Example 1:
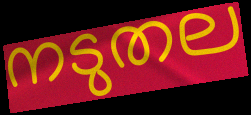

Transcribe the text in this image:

നടുതല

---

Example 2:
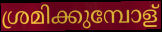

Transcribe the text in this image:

ശ്രമിക്കുമ്പോള്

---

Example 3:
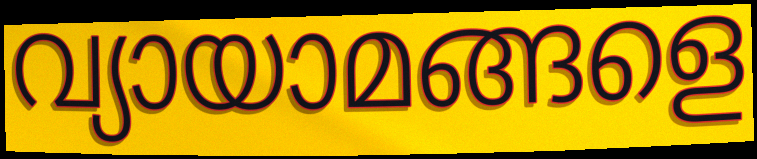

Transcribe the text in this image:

വ്യായാമങ്ങളെ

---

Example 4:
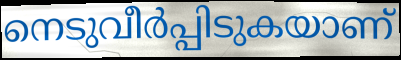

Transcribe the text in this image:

നെടുവീർപ്പിടുകയാണ്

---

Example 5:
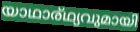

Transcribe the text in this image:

യാഥാര്ഥ്യവുമായി